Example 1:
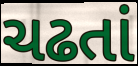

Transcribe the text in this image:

ચઢતાં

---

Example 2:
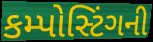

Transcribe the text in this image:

કમ્પોસ્ટિંગની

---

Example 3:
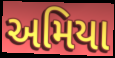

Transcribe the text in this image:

અમિયા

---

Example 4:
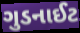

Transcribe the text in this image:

ગુડનાઈટ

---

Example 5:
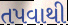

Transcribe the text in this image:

તપવાથી